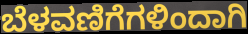
ಬೆಳವಣಿಗೆಗಳಿಂದಾಗಿ